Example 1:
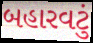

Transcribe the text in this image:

બહારવટું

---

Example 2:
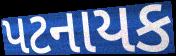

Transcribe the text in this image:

પટનાયક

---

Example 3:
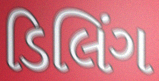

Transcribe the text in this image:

ડિલિંગ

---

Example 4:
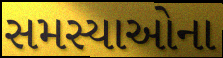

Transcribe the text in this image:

સમસ્યાઓના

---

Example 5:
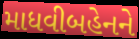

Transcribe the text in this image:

માધવીબહેનને